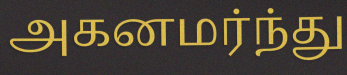
அகனமர்ந்து